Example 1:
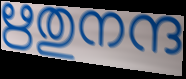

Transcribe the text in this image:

ഋതുനന്ദ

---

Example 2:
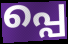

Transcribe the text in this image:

പ്പെ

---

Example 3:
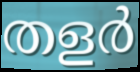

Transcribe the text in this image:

തളർ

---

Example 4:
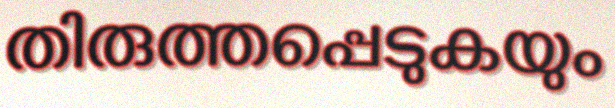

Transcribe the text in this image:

തിരുത്തപ്പെടുകയും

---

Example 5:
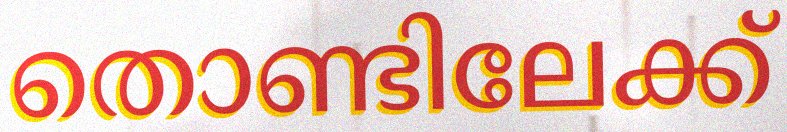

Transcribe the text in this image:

തൊണ്ടിലേക്ക്